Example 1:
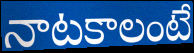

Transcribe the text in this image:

నాటకాలంటే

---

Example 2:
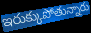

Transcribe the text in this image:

ఇరుక్కుపోతున్నారు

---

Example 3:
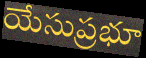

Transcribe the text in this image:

యేసుప్రభూ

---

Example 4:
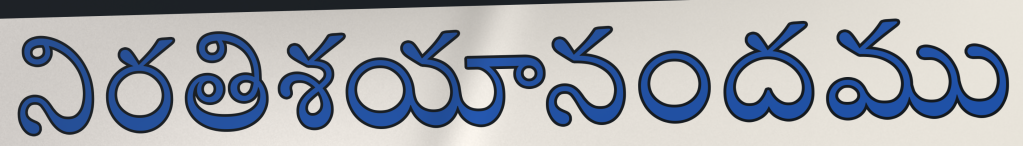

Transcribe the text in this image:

నిరతిశయానందము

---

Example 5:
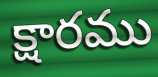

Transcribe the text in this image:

క్షారము